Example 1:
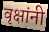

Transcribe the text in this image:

वृक्षांनी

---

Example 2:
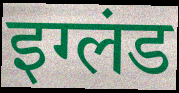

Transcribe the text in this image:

इग्लंड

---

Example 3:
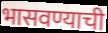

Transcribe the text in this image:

भासवण्याची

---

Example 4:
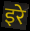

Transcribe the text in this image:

इरे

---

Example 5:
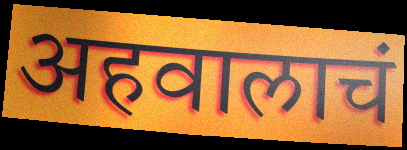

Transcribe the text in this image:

अहवालाचं